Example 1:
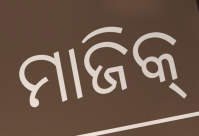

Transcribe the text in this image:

ମାଜିକ୍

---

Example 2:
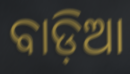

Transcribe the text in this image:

ବାଡ଼ିଆ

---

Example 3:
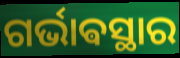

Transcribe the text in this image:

ଗର୍ଭାଵସ୍ଥାର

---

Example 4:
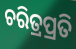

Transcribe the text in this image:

ଚରିତ୍ରପ୍ରତି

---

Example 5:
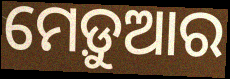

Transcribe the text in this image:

ମେଡ଼ୁଆର